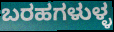
ಬರಹಗಳುಳ್ಳ